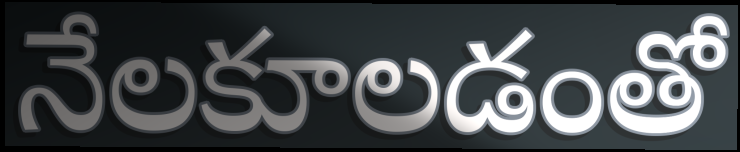
నేలకూలడంతో